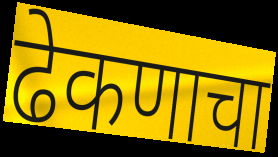
ढेकणाचा